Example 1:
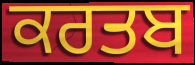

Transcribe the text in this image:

ਕਰਤਬ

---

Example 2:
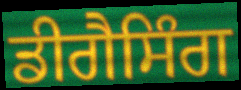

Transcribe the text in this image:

ਡੀਗੈਸਿੰਗ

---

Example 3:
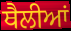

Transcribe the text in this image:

ਥੈਲੀਆਂ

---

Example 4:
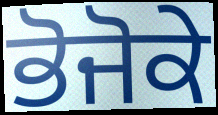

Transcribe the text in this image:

ਭੋਜੋਕੇ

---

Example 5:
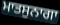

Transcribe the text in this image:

ਮਾਤਸੁਨਾਗਾ